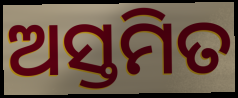
ଅସ୍ତମିତ